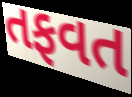
તફવત